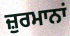
ਜ਼ੁਰਮਾਨਾਂ